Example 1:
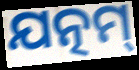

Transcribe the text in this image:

ଯତ୍ନମ୍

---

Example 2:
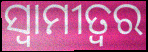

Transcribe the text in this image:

ସ୍ଵାମୀତ୍ୱର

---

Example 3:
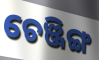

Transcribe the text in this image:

ଚେଞ୍ଜିଙ୍ଗ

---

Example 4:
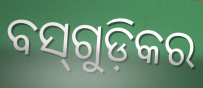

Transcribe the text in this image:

ବସ୍‌ଗୁଡ଼ିକର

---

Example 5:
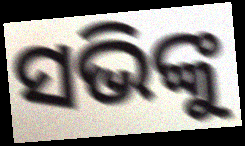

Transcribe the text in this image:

ସଭିଙ୍କୁ